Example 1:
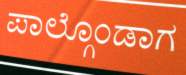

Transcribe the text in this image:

ಪಾಲ್ಗೊಂಡಾಗ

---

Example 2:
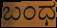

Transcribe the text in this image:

ಬಂಧ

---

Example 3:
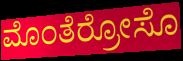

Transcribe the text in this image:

ಮೊಂತೆರ್ರೋಸೊ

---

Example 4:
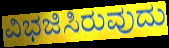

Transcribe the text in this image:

ವಿಭಜಿಸಿರುವುದು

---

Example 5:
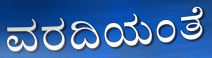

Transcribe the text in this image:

ವರದಿಯಂತೆ